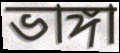
ভাঙ্গা